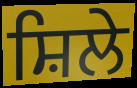
ਸ਼ਿਲੇ